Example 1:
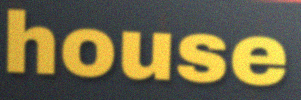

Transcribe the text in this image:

house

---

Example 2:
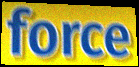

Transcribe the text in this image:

force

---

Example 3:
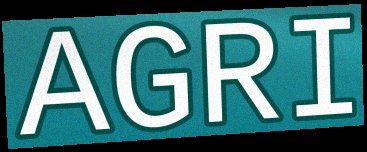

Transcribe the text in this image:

AGRI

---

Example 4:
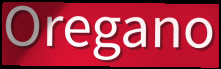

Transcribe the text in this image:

Oregano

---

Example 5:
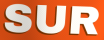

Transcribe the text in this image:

SUR